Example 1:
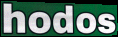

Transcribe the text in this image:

hodos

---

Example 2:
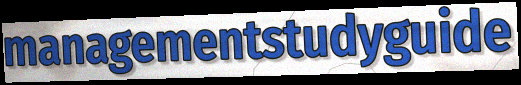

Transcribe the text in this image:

managementstudyguide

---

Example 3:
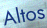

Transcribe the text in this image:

Altos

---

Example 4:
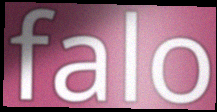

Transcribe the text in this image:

falo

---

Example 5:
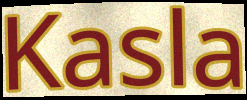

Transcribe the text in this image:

Kasla